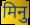
मिनु